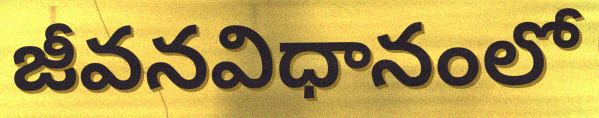
జీవనవిధానంలో